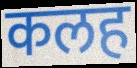
कलह